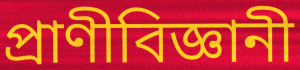
প্রাণীবিজ্ঞানী